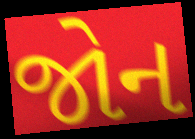
જોન